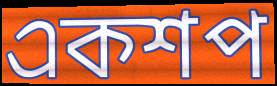
একশপ